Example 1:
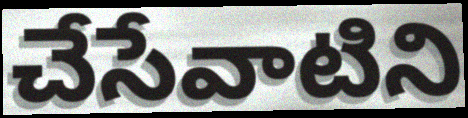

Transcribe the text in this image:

చేసేవాటిని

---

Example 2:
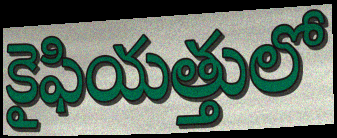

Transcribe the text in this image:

కైఫియత్తులో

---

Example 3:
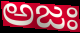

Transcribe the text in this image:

అజః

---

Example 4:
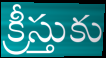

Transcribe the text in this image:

క్రీస్తుకు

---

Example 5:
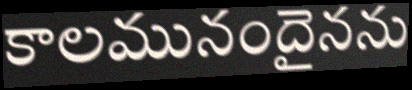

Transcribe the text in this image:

కాలమునందైనను